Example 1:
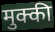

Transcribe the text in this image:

मुक्की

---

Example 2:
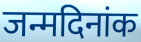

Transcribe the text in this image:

जन्मदिनांक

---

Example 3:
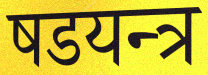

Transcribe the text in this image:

षडयन्त्र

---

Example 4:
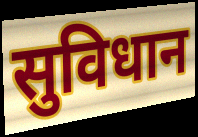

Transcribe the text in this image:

सुविधान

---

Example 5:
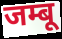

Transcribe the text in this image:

जम्बू